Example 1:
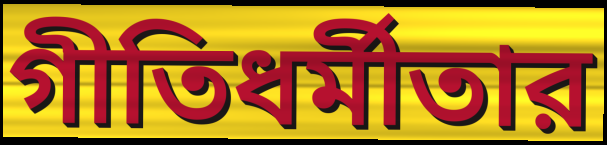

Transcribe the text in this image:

গীতিধর্মীতার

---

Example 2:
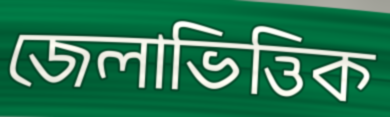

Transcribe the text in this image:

জেলাভিত্তিক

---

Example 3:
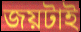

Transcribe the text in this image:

জয়টাই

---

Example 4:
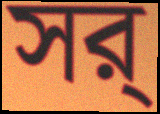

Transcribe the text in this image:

সর্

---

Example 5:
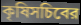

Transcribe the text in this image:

কৃষিসচিবের